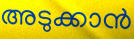
അടുക്കാൻ